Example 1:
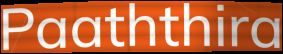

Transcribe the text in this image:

Paaththira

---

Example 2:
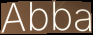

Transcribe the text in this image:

Abba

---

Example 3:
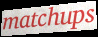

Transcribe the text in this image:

matchups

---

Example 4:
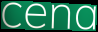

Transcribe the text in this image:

cena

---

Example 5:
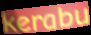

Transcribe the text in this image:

kerabu